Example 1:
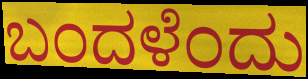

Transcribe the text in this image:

ಬಂದಳೆಂದು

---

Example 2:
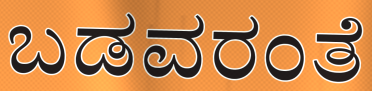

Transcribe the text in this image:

ಬಡವರಂತೆ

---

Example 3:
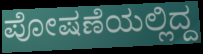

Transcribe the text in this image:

ಪೋಷಣೆಯಲ್ಲಿದ್ದ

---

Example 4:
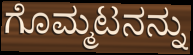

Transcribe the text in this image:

ಗೊಮ್ಮಟನನ್ನು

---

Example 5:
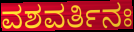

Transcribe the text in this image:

ವಶವರ್ತಿನಃ